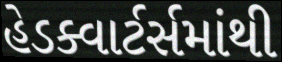
હેડક્વાર્ટર્સમાંથી